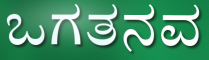
ಒಗತನವ